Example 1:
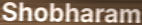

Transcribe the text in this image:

Shobharam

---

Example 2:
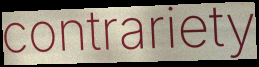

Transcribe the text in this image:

contrariety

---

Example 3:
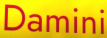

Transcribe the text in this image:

Damini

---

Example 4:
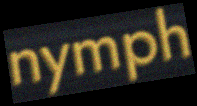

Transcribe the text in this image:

nymph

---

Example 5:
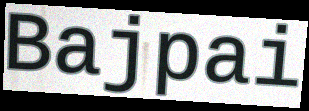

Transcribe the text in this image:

Bajpai